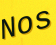
Nos